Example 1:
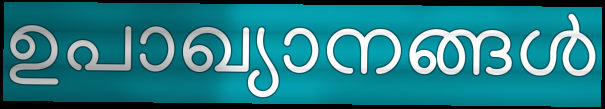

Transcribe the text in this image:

ഉപാഖ്യാനങ്ങൾ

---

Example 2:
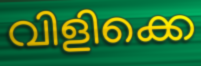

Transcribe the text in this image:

വിളിക്കെ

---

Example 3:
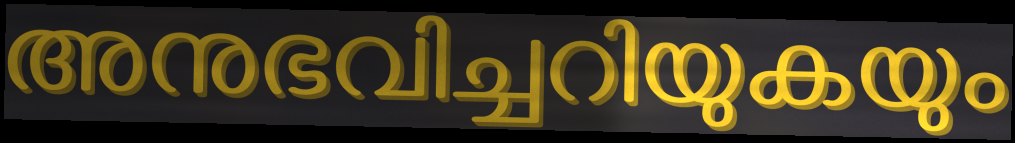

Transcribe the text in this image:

അനുഭവിച്ചറിയുകയും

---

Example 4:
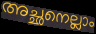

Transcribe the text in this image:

അച്ഛനെല്ലാം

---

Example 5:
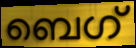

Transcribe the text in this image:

ബെഗ്